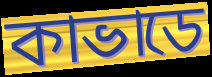
কাভাডে